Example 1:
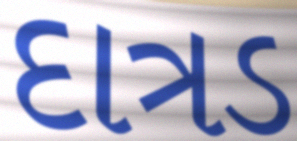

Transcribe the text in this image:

દાત્રડ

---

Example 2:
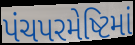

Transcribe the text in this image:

પંચપરમેષ્ટિમાં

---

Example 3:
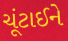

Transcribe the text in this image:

ચૂંટાઈને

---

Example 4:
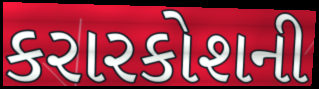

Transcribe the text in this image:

કરારકોશની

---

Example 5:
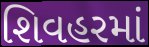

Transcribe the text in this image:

શિવહરમાં